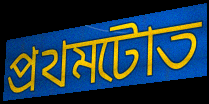
প্ৰথমটোত